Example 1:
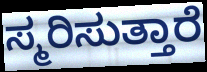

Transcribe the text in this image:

ಸ್ಮರಿಸುತ್ತಾರೆ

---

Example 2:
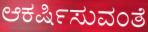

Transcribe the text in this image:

ಆಕರ್ಷಿಸುವಂತೆ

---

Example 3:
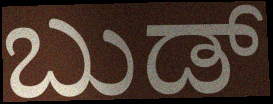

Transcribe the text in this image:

ಬುಡ್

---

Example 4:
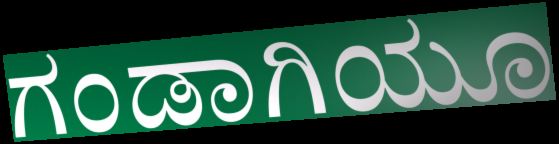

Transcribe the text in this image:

ಗಂಡಾಗಿಯೂ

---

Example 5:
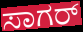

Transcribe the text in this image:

ಸಾಗರ್